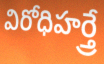
విరోధిహర్త్రే